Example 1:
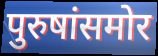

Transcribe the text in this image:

पुरुषांसमोर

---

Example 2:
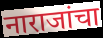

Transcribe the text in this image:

नाराजांचा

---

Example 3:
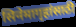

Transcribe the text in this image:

सिनेमागृहांसाठी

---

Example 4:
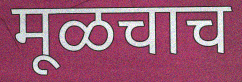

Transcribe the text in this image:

मूळचाच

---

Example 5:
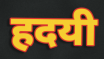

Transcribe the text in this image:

हदयी